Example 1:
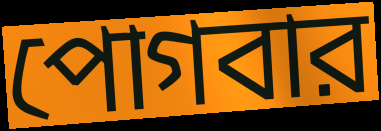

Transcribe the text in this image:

পোগবার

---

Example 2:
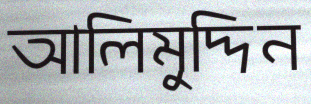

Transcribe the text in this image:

আলিমুদ্দিন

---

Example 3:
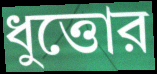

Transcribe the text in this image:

ধুত্তোর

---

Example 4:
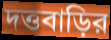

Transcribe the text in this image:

দত্তবাড়ির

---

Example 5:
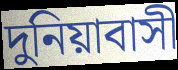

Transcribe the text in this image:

দুনিয়াবাসী